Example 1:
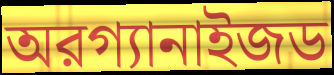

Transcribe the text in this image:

অরগ্যানাইজড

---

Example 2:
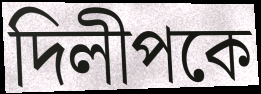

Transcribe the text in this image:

দিলীপকে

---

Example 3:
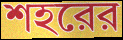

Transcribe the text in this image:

শহরের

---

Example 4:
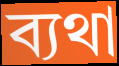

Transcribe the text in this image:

ব্যথা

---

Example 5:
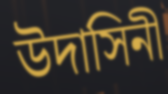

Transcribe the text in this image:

উদাসিনী